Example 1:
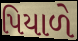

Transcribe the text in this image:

પિયાળે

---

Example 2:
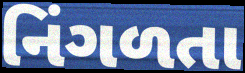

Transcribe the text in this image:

નિંગળતા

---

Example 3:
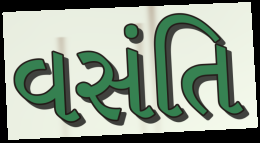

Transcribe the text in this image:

વસંતિ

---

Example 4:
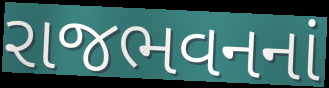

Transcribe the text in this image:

રાજભવનનાં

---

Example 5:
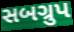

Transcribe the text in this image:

સબગ્રુપ